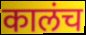
कालंच